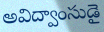
అవిద్వాంసుడై